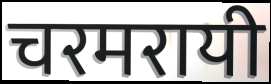
चरमरायी